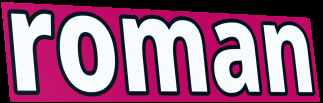
roman